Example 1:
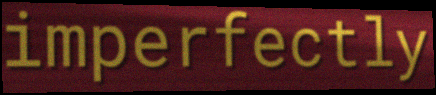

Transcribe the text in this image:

imperfectly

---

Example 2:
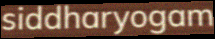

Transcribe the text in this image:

siddharyogam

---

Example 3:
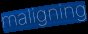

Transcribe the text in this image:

maligning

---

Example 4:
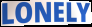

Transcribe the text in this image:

LONELY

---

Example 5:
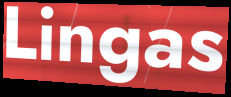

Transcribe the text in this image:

Lingas